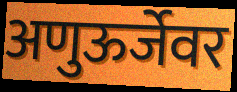
अणुऊर्जेवर